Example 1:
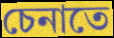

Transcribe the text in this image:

চেনাতে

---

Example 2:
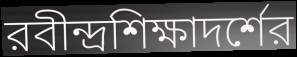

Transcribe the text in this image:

রবীন্দ্রশিক্ষাদর্শের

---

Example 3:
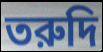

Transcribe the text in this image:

তরুদি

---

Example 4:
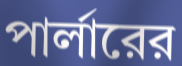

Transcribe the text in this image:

পার্লারের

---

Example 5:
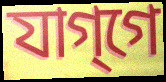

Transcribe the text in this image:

যাগ্‌গে